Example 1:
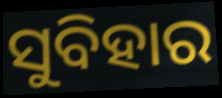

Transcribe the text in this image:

ସୁବିହାର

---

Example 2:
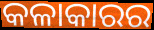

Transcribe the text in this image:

କଳାକାରର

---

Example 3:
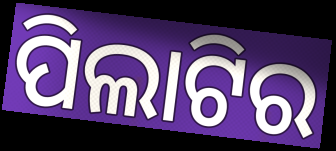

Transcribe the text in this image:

ପିଲାଟିର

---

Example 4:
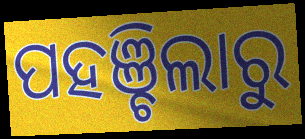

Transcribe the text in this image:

ପହଞ୍ଚିଲାରୁ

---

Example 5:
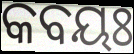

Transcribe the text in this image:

କବୟଃ